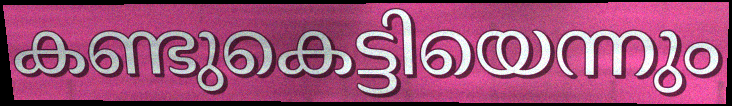
കണ്ടുകെട്ടിയെന്നും